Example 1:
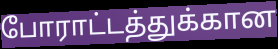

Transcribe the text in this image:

போராட்டத்துக்கான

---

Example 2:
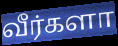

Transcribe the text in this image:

வீர்களா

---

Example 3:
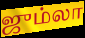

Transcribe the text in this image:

ஜும்லா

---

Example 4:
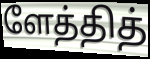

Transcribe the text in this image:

ளேத்தித்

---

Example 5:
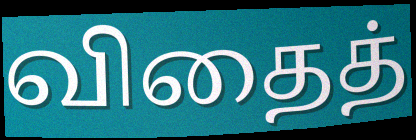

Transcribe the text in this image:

விதைத்